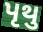
પૃથુ